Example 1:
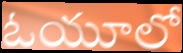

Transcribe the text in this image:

ఓయూలో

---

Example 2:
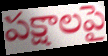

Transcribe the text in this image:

పక్షాలపై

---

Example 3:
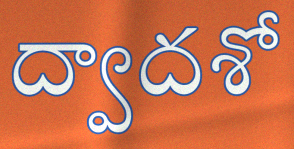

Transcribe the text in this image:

ద్వాదశో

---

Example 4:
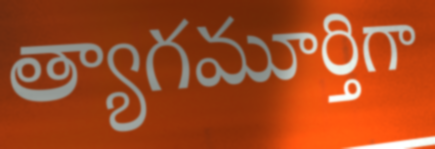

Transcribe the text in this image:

త్యాగమూర్తిగా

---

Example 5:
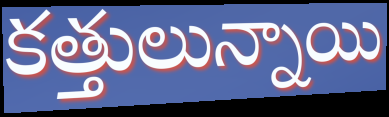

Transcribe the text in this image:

కత్తులున్నాయి